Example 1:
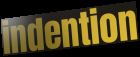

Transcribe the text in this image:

indention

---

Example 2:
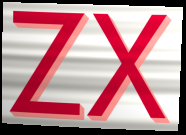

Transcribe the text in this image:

ZX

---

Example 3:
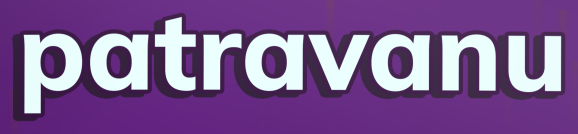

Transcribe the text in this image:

patravanu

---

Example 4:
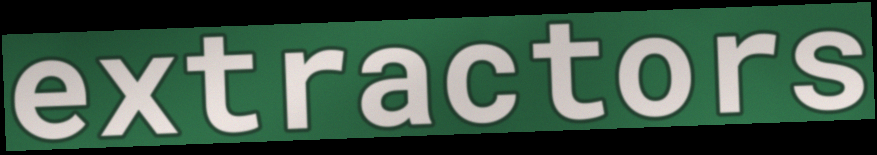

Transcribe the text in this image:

extractors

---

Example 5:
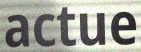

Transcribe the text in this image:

actue